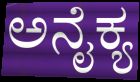
ಅನೈಕ್ಯ